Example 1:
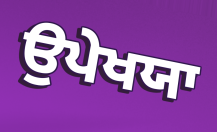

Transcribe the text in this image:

ਉਪੇਖਯਾ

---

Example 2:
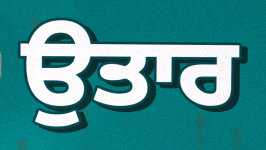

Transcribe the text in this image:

ਉਤਾਰ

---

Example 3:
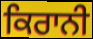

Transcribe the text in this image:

ਕਿਰਾਨੀ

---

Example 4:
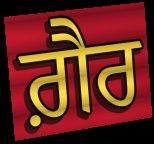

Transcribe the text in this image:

ਗ਼ੈਰ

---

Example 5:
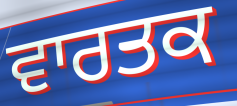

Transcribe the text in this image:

ਵਾਰਤਕ